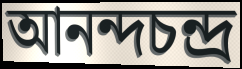
আনন্দচন্দ্র